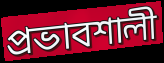
প্রভাবশালী